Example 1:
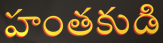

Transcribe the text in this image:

హంతకుడి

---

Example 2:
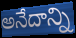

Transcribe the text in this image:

అనేదాన్ని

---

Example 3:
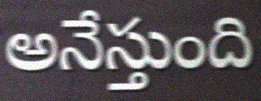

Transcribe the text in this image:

అనేస్తుంది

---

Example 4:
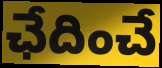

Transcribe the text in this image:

ఛేదించే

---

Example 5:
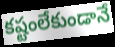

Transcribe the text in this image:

కష్టంలేకుండానే